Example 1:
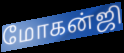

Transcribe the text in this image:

மோகன்ஜி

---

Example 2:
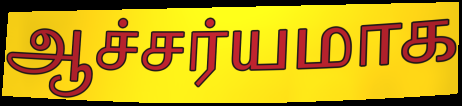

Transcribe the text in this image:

ஆச்சர்யமாக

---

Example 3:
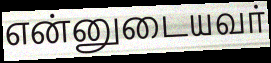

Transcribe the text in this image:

என்னுடையவர்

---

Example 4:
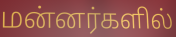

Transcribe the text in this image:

மன்னர்களில்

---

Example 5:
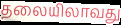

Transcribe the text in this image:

தலையிலாவது